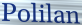
Polilan